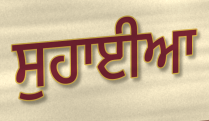
ਸੁਹਾਈਆ